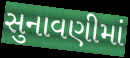
સુનાવણીમાં